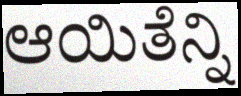
ಆಯಿತೆನ್ನಿ